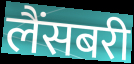
लैंसबरी